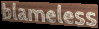
blameless